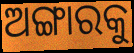
ଅଙ୍ଗାରକୁ